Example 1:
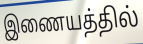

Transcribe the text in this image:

இணையத்தில்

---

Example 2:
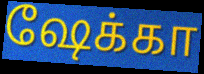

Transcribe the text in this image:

ஷேக்கா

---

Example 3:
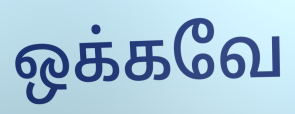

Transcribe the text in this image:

ஒக்கவே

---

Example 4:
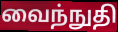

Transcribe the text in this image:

வைந்நுதி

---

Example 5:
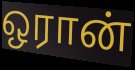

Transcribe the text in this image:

ஒரான்